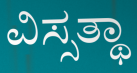
ವಿಸ್ಸತ್ಥಾ